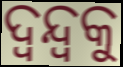
ଦ୍ଵନ୍ଦ୍ଵକୁ